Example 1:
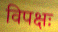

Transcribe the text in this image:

विपक्षः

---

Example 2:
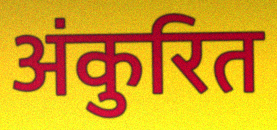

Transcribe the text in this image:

अंकुरित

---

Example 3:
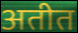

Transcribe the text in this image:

अतीत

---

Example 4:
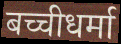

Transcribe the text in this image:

बच्चीधर्मा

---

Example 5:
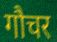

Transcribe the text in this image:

गौचर